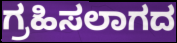
ಗ್ರಹಿಸಲಾಗದ